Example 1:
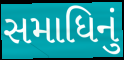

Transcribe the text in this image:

સમાધિનું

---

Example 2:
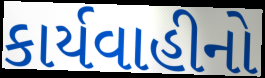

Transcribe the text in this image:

કાર્યવાહીનો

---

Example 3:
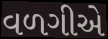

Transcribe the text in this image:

વળગીએ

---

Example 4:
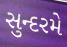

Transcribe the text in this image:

સુન્દરમે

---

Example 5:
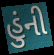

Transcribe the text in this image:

હુંની